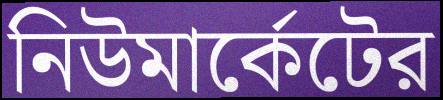
নিউমার্কেটের